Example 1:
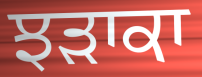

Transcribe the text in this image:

ਝੜਾਕਾ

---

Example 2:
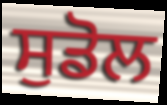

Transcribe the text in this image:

ਸੁਡੋਲ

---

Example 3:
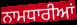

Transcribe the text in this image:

ਨਾਮਧਾਰੀਆਂ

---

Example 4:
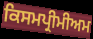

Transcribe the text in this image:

ਕਿਸਮਪ੍ਰੀਮੀਅਮ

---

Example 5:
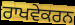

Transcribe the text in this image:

ਰਾਖਵੇਕਰਨ